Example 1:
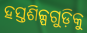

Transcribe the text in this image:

ହସ୍ତଶିଳ୍ପଗୁଡ଼ିକୁ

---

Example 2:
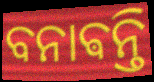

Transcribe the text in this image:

ବନାଵନ୍ତି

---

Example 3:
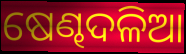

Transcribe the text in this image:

ଷେଣ୍ଢଦଳିଆ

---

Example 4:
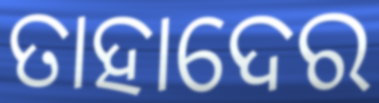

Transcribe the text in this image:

ତାହାଦେର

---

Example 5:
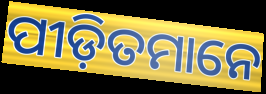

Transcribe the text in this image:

ପୀଡ଼ିତମାନେ